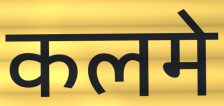
कलमे